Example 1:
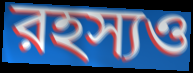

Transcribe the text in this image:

রহস্যও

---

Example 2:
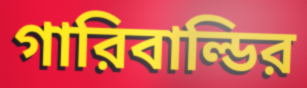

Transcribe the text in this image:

গারিবাল্ডির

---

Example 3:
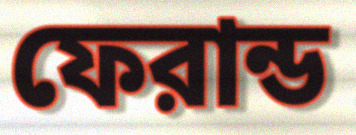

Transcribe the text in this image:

ফেরান্ড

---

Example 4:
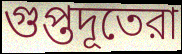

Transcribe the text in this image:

গুপ্তদূতেরা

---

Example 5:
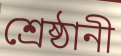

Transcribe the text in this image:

শ্রেষ্ঠানী